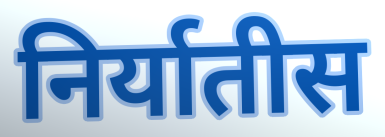
निर्यातीस